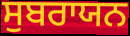
ਸੁਬਰਾਯਨ